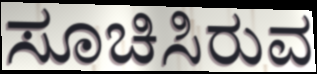
ಸೂಚಿಸಿರುವ